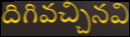
దిగివచ్చినవి